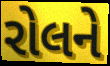
રોલને